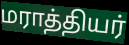
மராத்தியர்